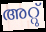
അറ്റു്